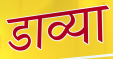
डाव्या